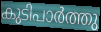
കുടിപാർത്തു